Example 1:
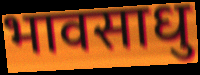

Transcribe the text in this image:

भावसाधु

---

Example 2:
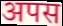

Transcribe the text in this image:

अपस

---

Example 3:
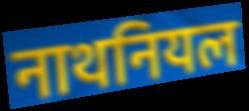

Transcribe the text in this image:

नाथनियल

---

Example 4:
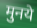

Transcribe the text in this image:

मुनये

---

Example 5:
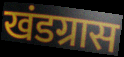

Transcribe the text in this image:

खंडग्रास